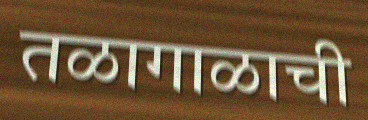
तळागाळाची